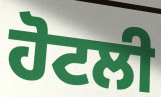
ਹੋਟਲੀ